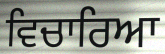
ਵਿਚਾਰਿਆ